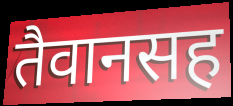
तैवानसह